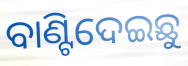
ବାଣ୍ଟିଦେଇଛୁ